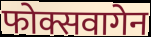
फोक्सवागेन